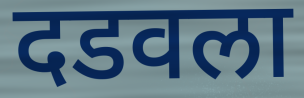
दडवला